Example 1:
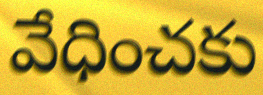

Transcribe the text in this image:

వేధించకు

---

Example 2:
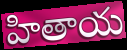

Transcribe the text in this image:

హితాయ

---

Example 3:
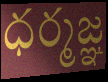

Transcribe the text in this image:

ధర్మజ్ఞ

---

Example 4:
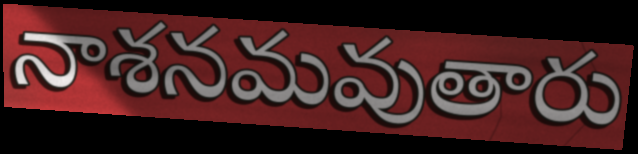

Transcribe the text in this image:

నాశనమవుతారు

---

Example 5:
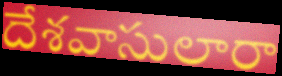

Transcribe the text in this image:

దేశవాసులారా